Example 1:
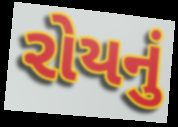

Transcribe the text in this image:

રોયનું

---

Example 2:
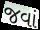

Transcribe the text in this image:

જવાં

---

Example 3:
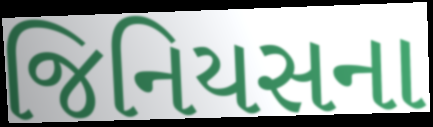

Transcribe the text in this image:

જિનિયસના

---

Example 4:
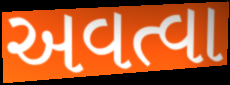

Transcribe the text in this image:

અવત્વા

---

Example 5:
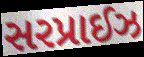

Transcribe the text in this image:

સરપ્રાઈઝ